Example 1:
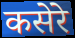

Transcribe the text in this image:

कसेरे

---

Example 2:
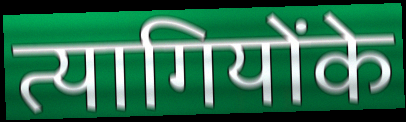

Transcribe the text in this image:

त्यागियोंके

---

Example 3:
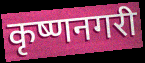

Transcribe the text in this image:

कृष्णनगरी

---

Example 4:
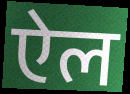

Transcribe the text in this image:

ऐल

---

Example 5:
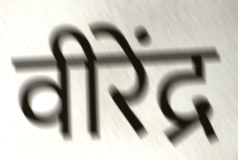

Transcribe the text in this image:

वीरेंद्र